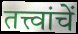
तत्त्वांचें